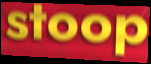
stoop